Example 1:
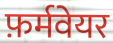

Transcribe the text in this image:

फ़र्मवेयर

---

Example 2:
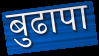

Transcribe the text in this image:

बुढापा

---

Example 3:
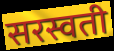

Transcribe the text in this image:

सरस्‍वती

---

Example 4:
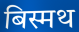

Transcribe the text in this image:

बिस्मथ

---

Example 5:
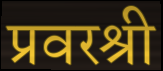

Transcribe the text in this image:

प्रवरश्री